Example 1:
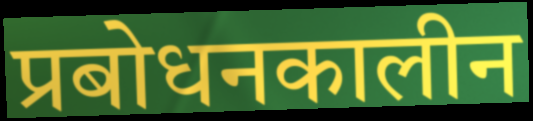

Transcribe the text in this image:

प्रबोधनकालीन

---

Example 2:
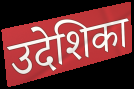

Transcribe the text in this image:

उदेशिका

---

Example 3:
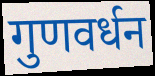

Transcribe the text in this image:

गुणवर्धन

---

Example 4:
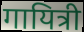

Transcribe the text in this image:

गायित्री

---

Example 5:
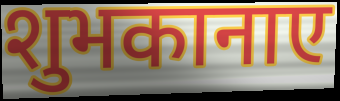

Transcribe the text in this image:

शुभकानाए